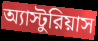
অ্যাস্টুরিয়াস